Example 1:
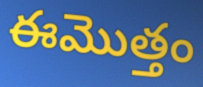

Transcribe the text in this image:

ఈమొత్తం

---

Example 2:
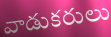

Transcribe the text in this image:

వాడుకరులు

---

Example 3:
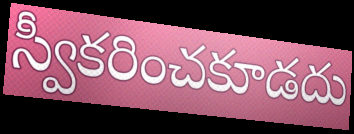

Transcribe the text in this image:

స్వీకరించకూడదు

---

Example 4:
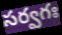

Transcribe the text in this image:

సర్వగః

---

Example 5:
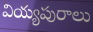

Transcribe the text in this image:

వియ్యపురాలు